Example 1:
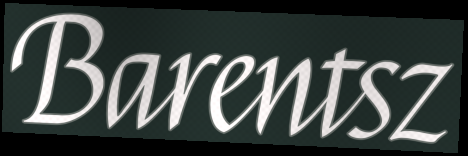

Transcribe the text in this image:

Barentsz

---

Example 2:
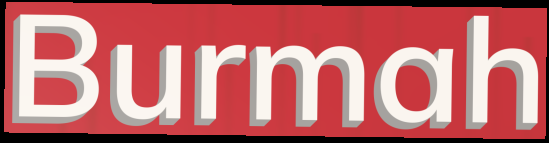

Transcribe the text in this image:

Burmah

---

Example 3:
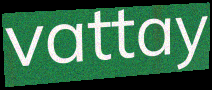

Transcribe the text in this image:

vattay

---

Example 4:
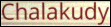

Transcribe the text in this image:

Chalakudy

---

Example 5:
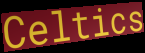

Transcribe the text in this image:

Celtics